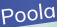
Poola